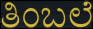
ತಿಂಬಲೆ